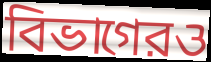
বিভাগেরও